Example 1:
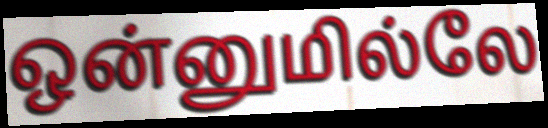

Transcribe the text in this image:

ஒன்னுமில்லே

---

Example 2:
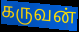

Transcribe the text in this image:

கருவன்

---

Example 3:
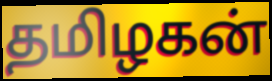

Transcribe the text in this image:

தமிழகன்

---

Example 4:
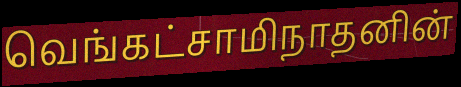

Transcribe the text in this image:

வெங்கட்சாமிநாதனின்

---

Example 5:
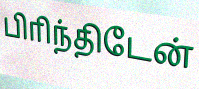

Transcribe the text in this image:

பிரிந்திடேன்